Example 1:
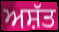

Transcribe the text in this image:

ਅਸ਼ੱਤ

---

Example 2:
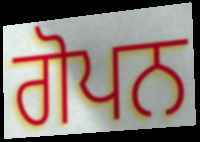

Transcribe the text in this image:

ਗੋਪਨ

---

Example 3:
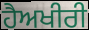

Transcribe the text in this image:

ਹੈਅਖੀਰੀ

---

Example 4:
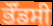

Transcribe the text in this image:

ਭੌਂਡਸੀ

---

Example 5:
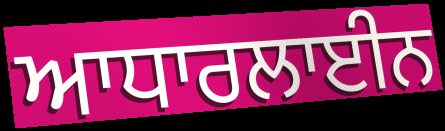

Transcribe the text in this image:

ਆਧਾਰਲਾਈਨ